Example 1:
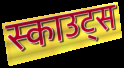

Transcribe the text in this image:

स्काउट्स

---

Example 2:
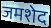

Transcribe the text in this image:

जमशेद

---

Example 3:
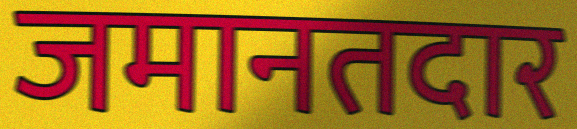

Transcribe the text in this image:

जमानतदार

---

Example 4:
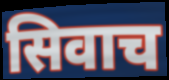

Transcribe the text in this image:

सिवाच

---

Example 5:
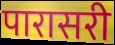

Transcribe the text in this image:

पारासरी